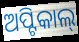
ଅପ୍ଟିକାଲ୍